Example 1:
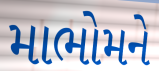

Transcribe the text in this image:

માભોમને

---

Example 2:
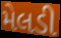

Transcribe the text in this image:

મેલડી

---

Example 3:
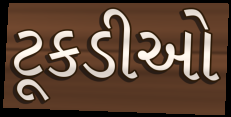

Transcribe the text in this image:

ટૂકડીઓ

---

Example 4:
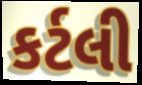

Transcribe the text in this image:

કર્ટલી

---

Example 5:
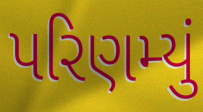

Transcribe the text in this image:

પરિણમ્યું